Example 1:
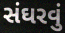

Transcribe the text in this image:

સંઘરવું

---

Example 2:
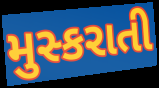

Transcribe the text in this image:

મુસ્કરાતી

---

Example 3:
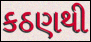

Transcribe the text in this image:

કઠણથી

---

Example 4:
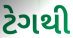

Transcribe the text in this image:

ટેગથી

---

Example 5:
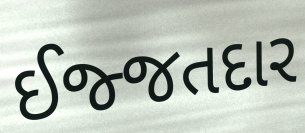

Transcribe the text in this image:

ઈજ્જતદાર